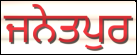
ਜਨੇਤਪੁਰ